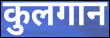
कुलगान